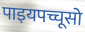
पाइयपच्चूसो